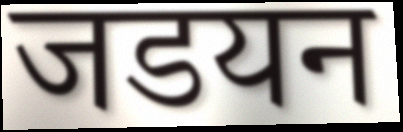
जडयन